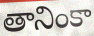
తానింకా